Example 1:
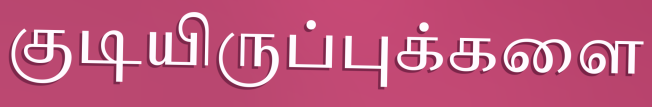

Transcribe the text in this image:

குடியிருப்புக்களை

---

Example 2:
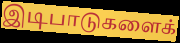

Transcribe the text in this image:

இடிபாடுகளைக்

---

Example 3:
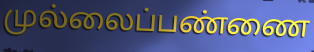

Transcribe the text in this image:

முல்லைப்பண்ணை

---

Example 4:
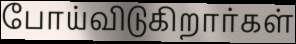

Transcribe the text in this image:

போய்விடுகிறார்கள்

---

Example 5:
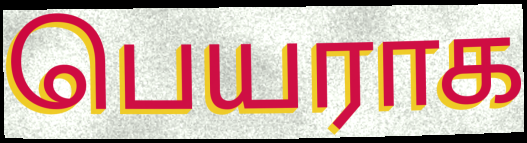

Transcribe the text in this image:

பெயராக